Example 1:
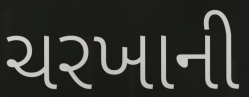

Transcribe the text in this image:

ચરખાની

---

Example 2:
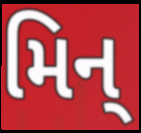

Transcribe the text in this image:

મિન્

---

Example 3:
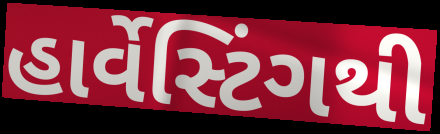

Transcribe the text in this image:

હાર્વેસ્ટિંગથી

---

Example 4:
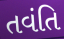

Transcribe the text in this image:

તવંતિ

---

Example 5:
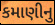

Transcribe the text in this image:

કમાણીનુ